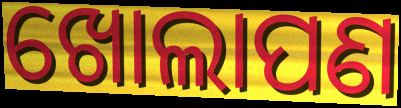
ଖୋଲାପଣ